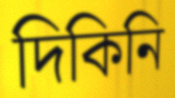
দিকিনি